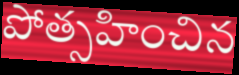
పోత్సహించిన